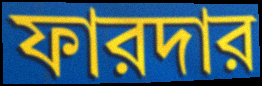
ফারদার